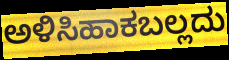
ಅಳಿಸಿಹಾಕಬಲ್ಲದು